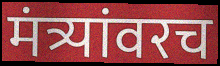
मंत्र्यांवरच